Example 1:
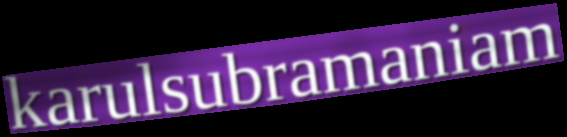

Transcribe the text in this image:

karulsubramaniam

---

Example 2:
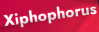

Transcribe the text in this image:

Xiphophorus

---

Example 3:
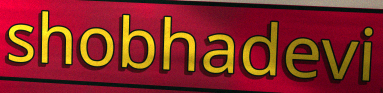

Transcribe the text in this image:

shobhadevi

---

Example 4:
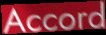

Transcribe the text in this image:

Accord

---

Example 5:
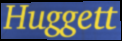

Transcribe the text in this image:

Huggett